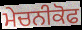
ਮੇਚਨੀਕੋਫ